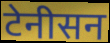
टेनीसन